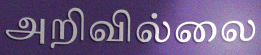
அறிவில்லை